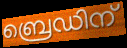
ബ്രെഡിന്